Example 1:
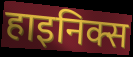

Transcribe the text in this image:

हाइनिक्स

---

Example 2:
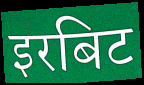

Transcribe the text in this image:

इरबिट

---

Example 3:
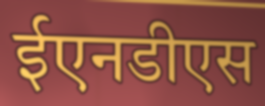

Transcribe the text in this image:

ईएनडीएस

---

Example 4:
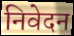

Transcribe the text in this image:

निवेदन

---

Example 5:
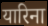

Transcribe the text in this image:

यारिना